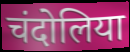
चंदोलिया